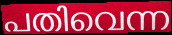
പതിവെന്ന